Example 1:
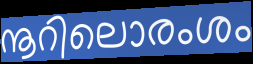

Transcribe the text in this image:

നൂറിലൊരംശം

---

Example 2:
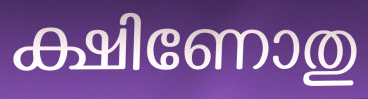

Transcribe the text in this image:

ക്ഷിണോതു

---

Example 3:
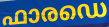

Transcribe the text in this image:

ഫാരഡെ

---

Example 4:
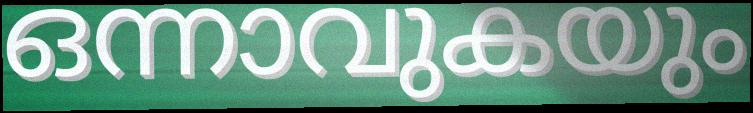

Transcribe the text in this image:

ഒന്നാവുകയും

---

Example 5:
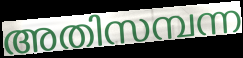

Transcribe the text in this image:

അതിസമ്പന്ന